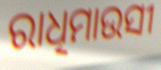
ରାଧିମାଉସୀ